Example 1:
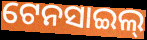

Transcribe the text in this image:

ଟେନସାଇଲ୍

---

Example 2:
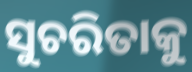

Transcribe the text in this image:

ସୁଚରିତାକୁ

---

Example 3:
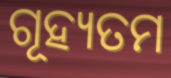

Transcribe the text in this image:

ଗୂହ୍ୟତମ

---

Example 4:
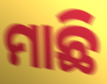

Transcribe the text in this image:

ମାଛି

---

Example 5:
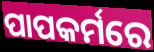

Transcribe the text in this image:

ପାପକର୍ମରେ